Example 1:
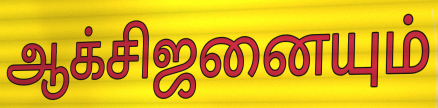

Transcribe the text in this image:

ஆக்சிஜனையும்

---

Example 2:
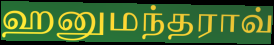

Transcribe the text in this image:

ஹனுமந்தராவ்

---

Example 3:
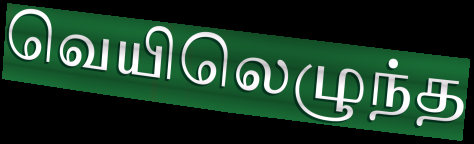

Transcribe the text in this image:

வெயிலெழுந்த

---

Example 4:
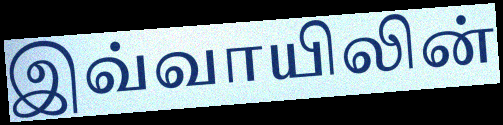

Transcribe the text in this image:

இவ்வாயிலின்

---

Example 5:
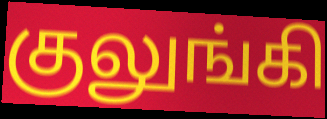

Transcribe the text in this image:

குலுங்கி